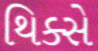
થિક્સે